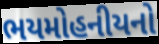
ભયમોહનીયનો